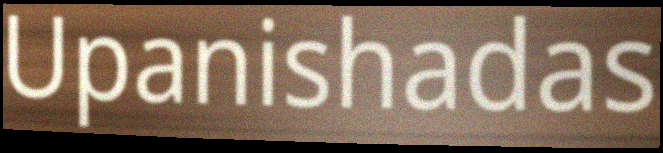
Upanishadas